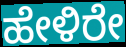
ಹೇಳಿರೇ